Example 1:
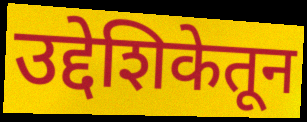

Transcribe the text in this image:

उद्देशिकेतून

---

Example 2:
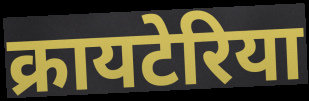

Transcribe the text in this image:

क्रायटेरिया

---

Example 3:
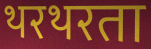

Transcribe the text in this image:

थरथरता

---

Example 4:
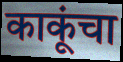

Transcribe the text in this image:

काकूंचा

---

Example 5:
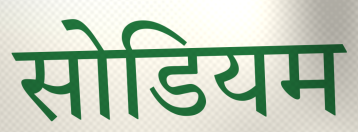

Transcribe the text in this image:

सोडियम